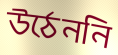
উঠেননি